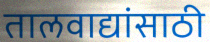
तालवाद्यांसाठी